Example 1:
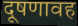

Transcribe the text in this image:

दूषणावह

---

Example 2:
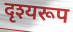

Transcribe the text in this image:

दृश्यरूप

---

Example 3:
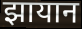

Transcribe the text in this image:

झायान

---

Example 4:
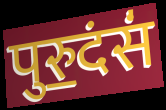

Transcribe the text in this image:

पुरु॒दंसं॑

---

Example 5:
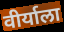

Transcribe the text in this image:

वीर्याला